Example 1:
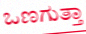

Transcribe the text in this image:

ಒಣಗುತ್ತಾ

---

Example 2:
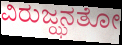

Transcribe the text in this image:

ವಿರುಜ್ಝನತೋ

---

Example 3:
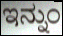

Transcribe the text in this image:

ಇನ್ನುಂ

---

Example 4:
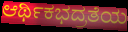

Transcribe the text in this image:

ಆರ್ಥಿಕಭದ್ರತೆಯ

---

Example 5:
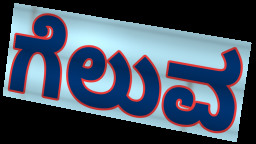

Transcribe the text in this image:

ಗೆಲುವ